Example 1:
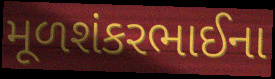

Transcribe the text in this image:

મૂળશંકરભાઈના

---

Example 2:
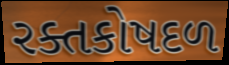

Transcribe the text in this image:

રક્તકોષદળ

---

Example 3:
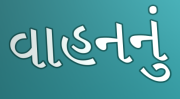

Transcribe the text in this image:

વાહનનું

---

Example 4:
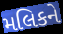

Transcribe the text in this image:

મલિકને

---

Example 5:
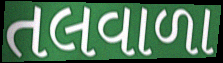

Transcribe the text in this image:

તલવાળા